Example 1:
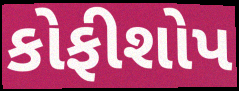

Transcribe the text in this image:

કોફીશોપ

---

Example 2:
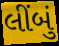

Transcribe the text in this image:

લીંબું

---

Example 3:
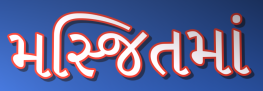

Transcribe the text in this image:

મસ્જિતમાં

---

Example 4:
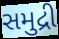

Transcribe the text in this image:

સમુદ્રી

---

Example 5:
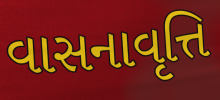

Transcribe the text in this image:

વાસનાવૃત્તિ